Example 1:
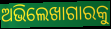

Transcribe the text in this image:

ଅଭିଲେଖାଗାରକୁ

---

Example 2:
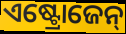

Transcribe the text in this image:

ଏଷ୍ଟ୍ରୋଜେନ୍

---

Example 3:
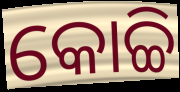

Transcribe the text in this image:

କୋଚ୍ଚି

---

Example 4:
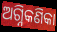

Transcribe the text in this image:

ଅଗ୍ନିକଣିକା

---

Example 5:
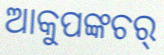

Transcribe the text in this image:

ଆକୁପଙ୍କଚର୍